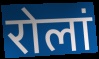
रोलां